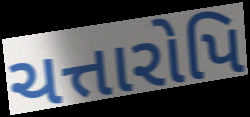
ચત્તારોપિ